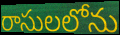
రాసులలోను